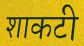
शाकटी